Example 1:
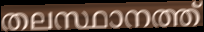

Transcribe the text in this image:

തലസ്ഥാനത്ത്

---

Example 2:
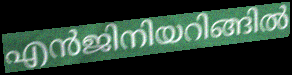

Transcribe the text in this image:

എൻജിനിയറിങ്ങിൽ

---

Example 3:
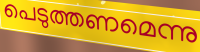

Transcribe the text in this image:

പെടുത്തണമെന്നു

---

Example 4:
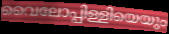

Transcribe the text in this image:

വൈലോപ്പിള്ളിയെയും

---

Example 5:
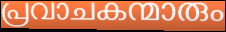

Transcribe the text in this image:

പ്രവാചകന്മാരും